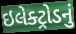
ઇલેક્ટ્રોડનું